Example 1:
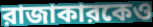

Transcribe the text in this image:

রাজাকারকেও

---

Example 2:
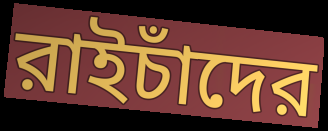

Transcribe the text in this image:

রাইচাঁদের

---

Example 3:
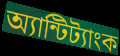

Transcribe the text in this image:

অ্যান্টিট্যাংক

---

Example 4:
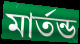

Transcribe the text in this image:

মার্তন্ড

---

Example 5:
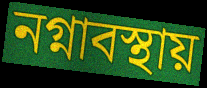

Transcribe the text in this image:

নগ্নাবস্থায়